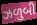
ઝળુબી